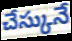
చేస్కునే